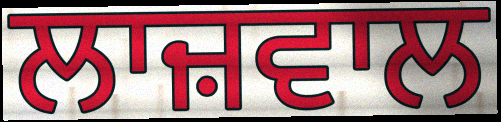
ਲਾਜ਼ਵਾਲ